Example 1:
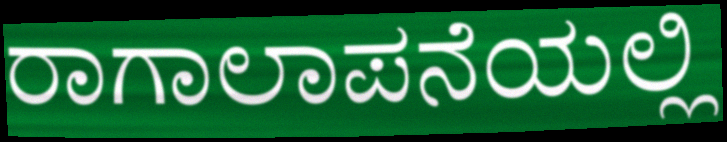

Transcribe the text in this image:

ರಾಗಾಲಾಪನೆಯಲ್ಲಿ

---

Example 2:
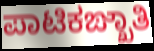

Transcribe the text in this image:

ಪಾಟಿಕಙ್ಖಾತಿ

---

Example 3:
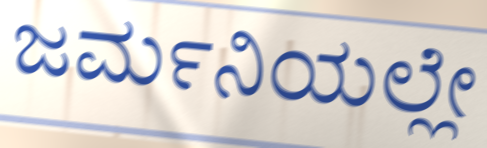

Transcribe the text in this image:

ಜರ್ಮನಿಯಲ್ಲೇ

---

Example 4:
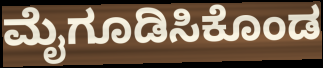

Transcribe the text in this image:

ಮೈಗೂಡಿಸಿಕೊಂಡ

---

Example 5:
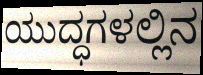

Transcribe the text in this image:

ಯುದ್ಧಗಳಲ್ಲಿನ